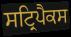
ਸਟ੍ਰਿਪੈਕਸ